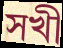
সখী